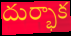
దుర్భాక